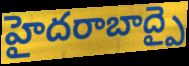
హైదరాబాద్పై